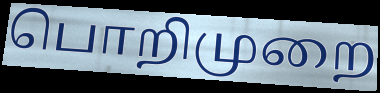
பொறிமுறை